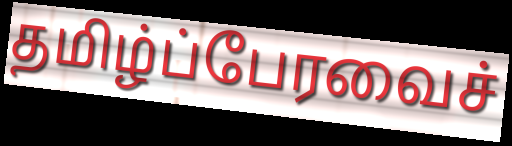
தமிழ்ப்பேரவைச்